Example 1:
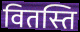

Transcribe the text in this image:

वितस्ति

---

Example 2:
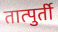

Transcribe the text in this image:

तात्पुर्ती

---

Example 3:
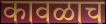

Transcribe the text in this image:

कावळाच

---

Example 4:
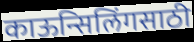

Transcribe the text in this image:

काऊन्सिलिंगसाठी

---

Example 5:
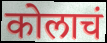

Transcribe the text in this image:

कोलाचं